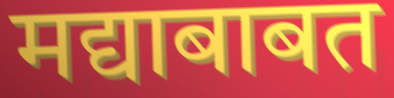
मद्याबाबत